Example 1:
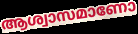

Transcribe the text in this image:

ആശ്വാസമാണോ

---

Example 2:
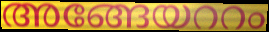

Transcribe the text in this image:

അങ്ങേയററം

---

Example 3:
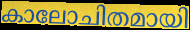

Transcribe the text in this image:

കാലോചിതമായി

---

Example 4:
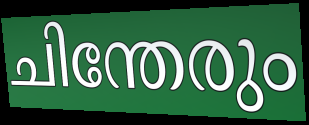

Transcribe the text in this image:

ചിന്തേരും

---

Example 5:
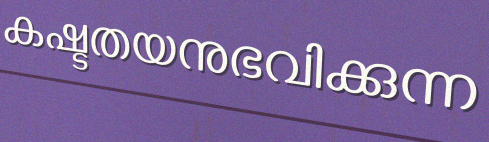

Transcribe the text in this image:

കഷ്ടതയനുഭവിക്കുന്ന